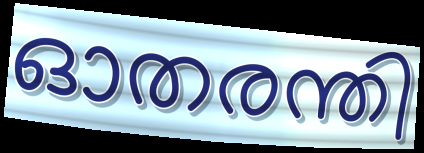
ഓതരന്തി